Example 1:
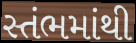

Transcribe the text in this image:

સ્તંભમાંથી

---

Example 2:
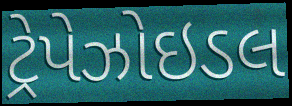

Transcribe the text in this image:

ટ્રેપેઝોઇડલ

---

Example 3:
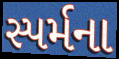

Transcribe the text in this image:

સ્પર્મના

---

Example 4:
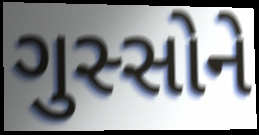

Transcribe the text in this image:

ગુસ્સોને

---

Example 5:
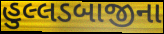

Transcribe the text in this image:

હુલ્લડબાજીના